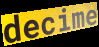
decime